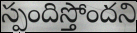
స్పందిస్తోందని